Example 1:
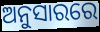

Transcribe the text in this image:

ଅନୁସାରରେ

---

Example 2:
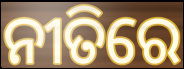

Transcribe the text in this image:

ନୀତିରେ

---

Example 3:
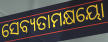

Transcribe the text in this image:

ସେବ୍ୟତାମକ୍ଷୟୋ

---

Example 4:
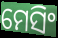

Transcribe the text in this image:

ମେସିଂ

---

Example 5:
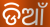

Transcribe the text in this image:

ଡିଆଁ